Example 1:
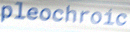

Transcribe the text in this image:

pleochroic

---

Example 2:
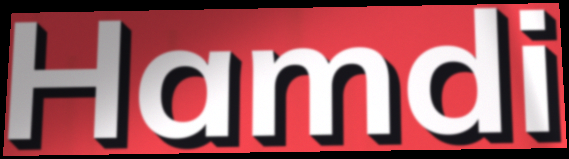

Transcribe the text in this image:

Hamdi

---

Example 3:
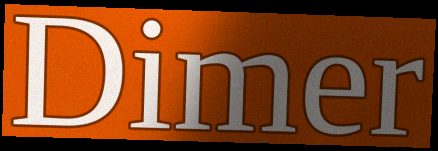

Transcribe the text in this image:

Dimer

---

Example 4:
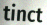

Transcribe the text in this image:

tinct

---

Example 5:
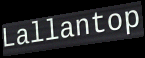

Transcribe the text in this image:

Lallantop